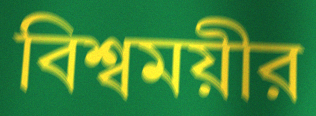
বিশ্বময়ীর